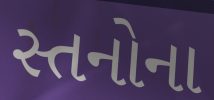
સ્તનોના